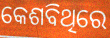
କେଶବିଥିରେ